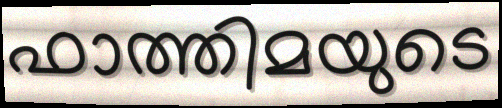
ഫാത്തിമയുടെ